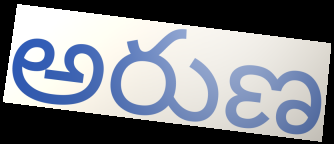
అరుణ